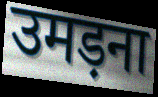
उमड़ना